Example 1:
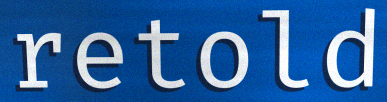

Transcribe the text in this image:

retold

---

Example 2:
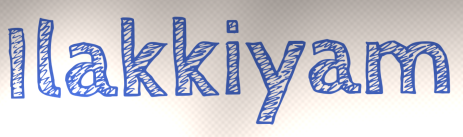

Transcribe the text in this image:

Ilakkiyam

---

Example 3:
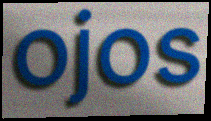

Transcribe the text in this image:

ojos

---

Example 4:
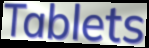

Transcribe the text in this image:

Tablets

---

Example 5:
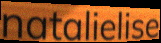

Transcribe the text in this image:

natalielise